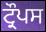
ਟ੍ਰੌਪਸ